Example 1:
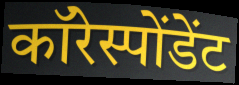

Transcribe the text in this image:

कॉरेस्पोंडेंट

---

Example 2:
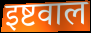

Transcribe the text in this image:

इष्टवाल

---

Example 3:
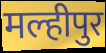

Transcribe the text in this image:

मल्हीपुर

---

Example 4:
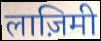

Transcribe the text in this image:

लाज़िमी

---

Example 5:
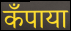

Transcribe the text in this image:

कँपाया